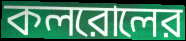
কলরোলের